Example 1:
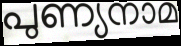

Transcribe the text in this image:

പുണ്യനാമ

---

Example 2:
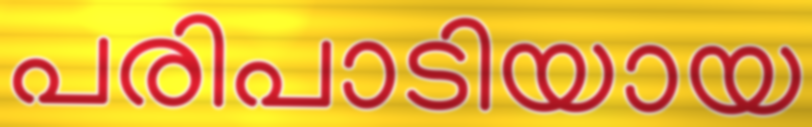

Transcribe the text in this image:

പരിപാടിയായ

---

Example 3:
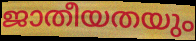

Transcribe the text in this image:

ജാതീയതയും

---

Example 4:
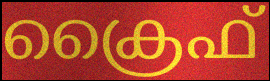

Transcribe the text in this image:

ക്രൈഫ്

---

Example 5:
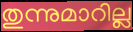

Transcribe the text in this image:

തുന്നുമാറില്ല